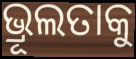
ଭ୍ରୂଲତାକୁ